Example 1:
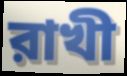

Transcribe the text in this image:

রাখী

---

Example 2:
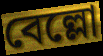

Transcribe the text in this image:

বেল্লো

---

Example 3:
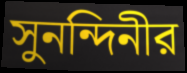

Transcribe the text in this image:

সুনন্দিনীর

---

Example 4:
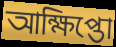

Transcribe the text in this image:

আক্ষিপ্তো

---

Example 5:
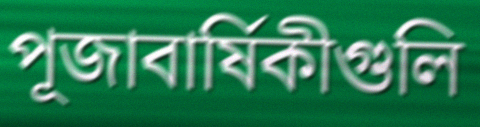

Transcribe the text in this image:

পূজাবার্ষিকীগুলি